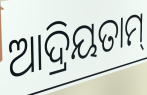
ଆଦ୍ରିୟତାମ୍